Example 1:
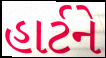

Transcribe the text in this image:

હાર્ટને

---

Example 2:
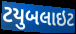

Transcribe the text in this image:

ટયુબલાઇટ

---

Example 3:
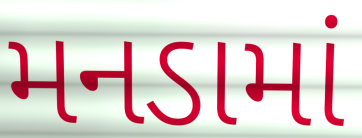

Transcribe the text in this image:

મનડામાં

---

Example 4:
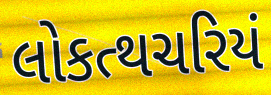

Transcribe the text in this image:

લોકત્થચરિયં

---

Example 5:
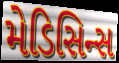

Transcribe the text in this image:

મેડિસિન્સ